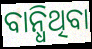
ବାନ୍ଧିଥିବା